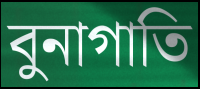
বুনাগাতি